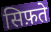
सिफ़ते